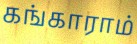
கங்காராம்